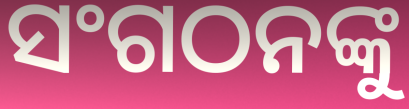
ସଂଗଠନଙ୍କୁ